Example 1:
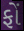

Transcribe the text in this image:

ફોં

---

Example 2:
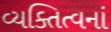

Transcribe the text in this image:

વ્યક્તિત્વનાં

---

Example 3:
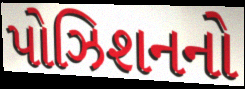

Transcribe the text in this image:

પોઝિશનનો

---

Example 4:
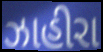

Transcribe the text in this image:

ઝાહીરા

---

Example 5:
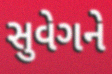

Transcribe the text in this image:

સુવેગને